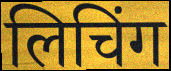
लिचिंग